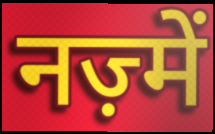
नज़्में